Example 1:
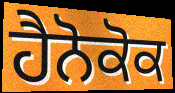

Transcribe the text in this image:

ਹੈਨੋਕੋਕ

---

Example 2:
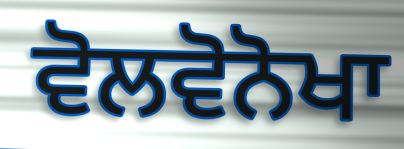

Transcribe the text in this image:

ਵੋਲਵੋਨੋਖਾ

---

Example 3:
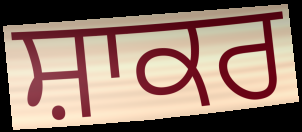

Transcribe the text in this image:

ਸ਼ਾਕਰ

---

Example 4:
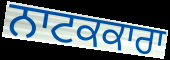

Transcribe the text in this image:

ਨਾਟਕਕਾਰਾ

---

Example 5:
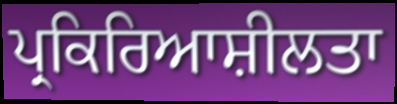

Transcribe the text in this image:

ਪ੍ਰਕਿਰਿਆਸ਼ੀਲਤਾ